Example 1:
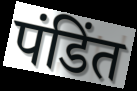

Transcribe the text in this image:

पंडिंत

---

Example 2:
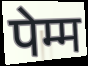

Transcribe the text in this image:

पेम्म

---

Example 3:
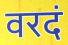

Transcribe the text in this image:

वरदं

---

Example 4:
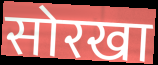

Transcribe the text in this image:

सोरखा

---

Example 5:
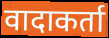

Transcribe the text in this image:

वादाकर्ता